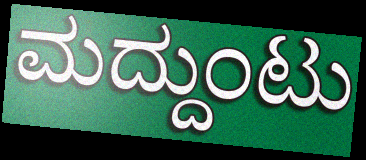
ಮದ್ದುಂಟು